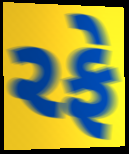
રફે